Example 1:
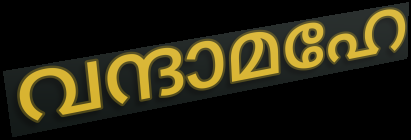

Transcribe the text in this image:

വന്ദാമഹേ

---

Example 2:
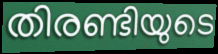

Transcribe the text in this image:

തിരണ്ടിയുടെ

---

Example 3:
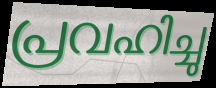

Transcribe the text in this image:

പ്രവഹിച്ചു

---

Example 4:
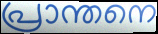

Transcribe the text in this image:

പ്രാന്തനെ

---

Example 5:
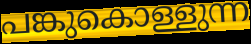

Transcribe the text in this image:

പങ്കുകൊള്ളുന്ന